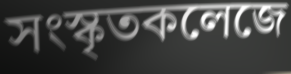
সংস্কৃতকলেজে